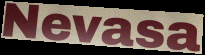
Nevasa